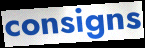
consigns